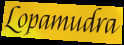
Lopamudra